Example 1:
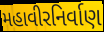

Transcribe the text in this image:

મહાવીરનિર્વાણ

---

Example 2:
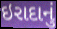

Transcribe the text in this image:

ઇરાદાનું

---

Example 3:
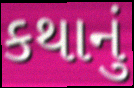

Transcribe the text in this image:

કથાનું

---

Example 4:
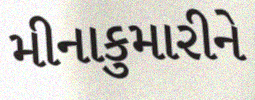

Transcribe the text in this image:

મીનાકુમારીને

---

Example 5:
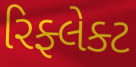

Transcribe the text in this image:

રિફ્લેક્ટ